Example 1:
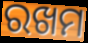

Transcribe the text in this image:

ରଖମ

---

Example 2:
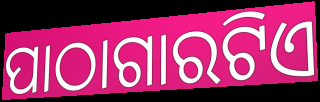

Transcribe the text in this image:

ପାଠାଗାରଟିଏ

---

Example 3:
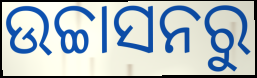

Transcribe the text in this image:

ଉଚ୍ଚାସନରୁ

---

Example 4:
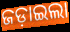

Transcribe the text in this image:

ଜଡ଼ାଇଲା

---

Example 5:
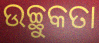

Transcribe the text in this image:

ଉଚ୍ଛୁକତା